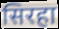
सिरहा